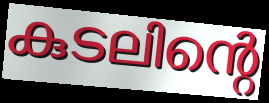
കുടലിന്റെ